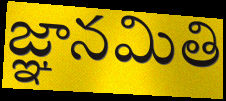
జ్ఞానమితి